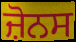
ਜ਼ੋਨਸ